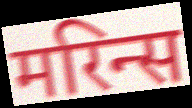
मरिन्स